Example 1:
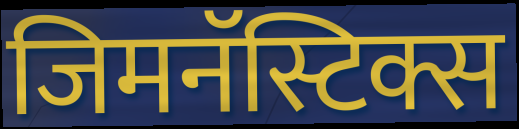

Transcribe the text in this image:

जिमनॅस्टिक्स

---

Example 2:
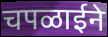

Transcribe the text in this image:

चपळाईने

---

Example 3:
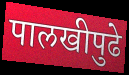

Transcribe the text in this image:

पालखीपुढे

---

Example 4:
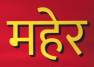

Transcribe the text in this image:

महेर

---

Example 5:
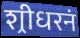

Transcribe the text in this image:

श्रीधरनं